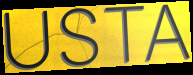
USTA